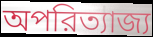
অপরিত্যাজ্য